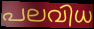
പലവിധ